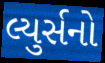
લ્યુર્સનો